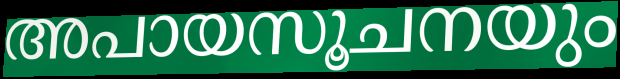
അപായസൂചനയും